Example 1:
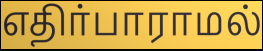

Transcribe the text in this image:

எதிர்பாராமல்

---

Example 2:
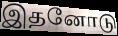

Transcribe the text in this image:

இதனோடு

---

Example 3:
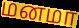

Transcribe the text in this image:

மனமா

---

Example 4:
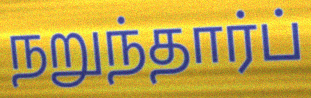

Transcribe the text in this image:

நறுந்தார்ப்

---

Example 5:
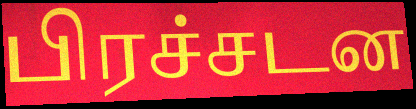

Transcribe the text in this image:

பிரச்சடன